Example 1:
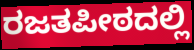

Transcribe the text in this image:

ರಜತಪೀಠದಲ್ಲಿ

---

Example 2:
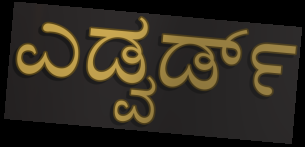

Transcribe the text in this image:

ಎಡ್ವರ್ಡ್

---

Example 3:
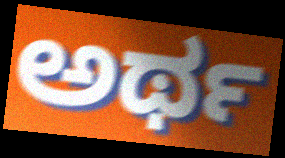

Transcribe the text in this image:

ಅರ್ಥ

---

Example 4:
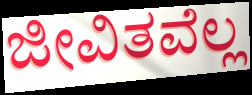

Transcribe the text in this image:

ಜೀವಿತವೆಲ್ಲ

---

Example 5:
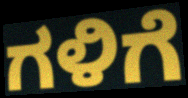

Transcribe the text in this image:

ಗಳಿಗೆ